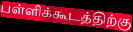
பள்ளிக்கூடத்திற்கு